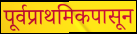
पूर्वप्राथमिकपासून